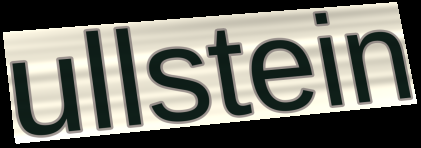
ullstein